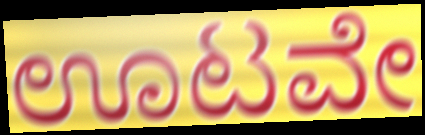
ಊಟವೇ